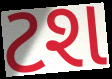
ટશ